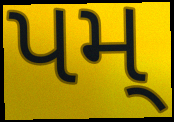
પમ્